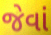
જેવાં